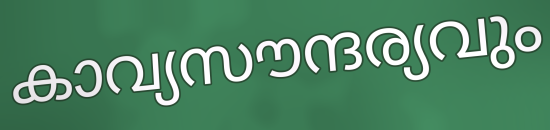
കാവ്യസൗന്ദര്യവും